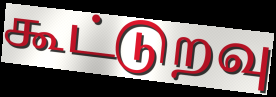
கூட்டுறவு